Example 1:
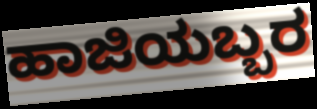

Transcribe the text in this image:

ಹಾಜಿಯಬ್ಬರ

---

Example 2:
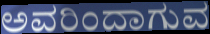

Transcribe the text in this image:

ಅವರಿಂದಾಗುವ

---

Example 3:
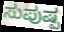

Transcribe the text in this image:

ಸುಪುಷ್ಪ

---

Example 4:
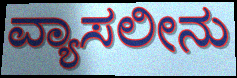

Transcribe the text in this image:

ವ್ಯಾಸಲೀನು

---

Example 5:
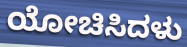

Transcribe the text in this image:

ಯೋಚಿಸಿದಳು